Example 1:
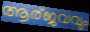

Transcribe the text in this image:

ആര്ജവവും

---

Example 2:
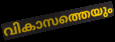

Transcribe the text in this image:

വികാസത്തെയും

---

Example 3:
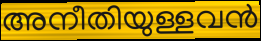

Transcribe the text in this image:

അനീതിയുള്ളവൻ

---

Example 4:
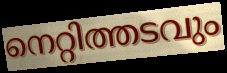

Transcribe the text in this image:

നെറ്റിത്തടവും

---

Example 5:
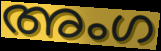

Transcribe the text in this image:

അംഗ